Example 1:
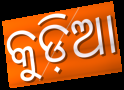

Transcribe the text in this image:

କୁଡ଼ିଆ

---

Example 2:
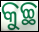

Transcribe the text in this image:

କୁଚ୍ଛ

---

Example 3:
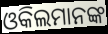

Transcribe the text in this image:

ଓକିଲମାନଙ୍କ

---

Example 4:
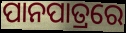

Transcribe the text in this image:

ପାନପାତ୍ରରେ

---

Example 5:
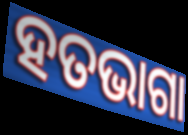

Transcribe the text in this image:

ହତଭାଗା